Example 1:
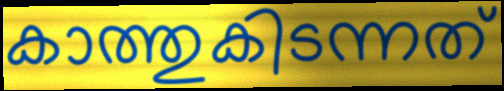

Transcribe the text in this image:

കാത്തുകിടന്നത്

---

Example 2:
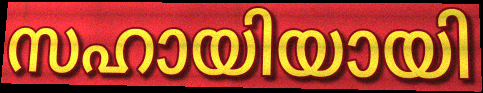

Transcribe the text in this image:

സഹായിയായി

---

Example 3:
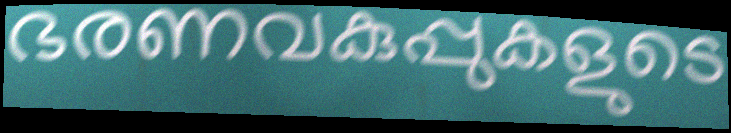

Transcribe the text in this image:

ഭരണവകുപ്പുകളുടെ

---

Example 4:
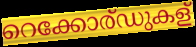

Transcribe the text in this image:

റെക്കോര്ഡുകള്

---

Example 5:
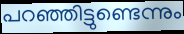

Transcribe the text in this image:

പറഞ്ഞിട്ടുണ്ടെന്നും